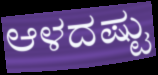
ಆಳದಷ್ಟು